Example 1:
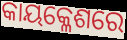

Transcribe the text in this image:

କାୟକ୍ଳେଶରେ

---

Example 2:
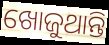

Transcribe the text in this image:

ଖୋଜୁଥାନ୍ତି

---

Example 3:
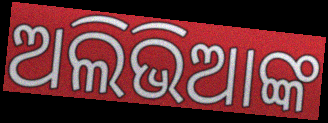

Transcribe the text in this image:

ଅଲିଭିଆଙ୍କ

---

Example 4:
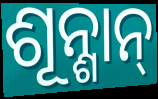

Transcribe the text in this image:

ଶୂନ୍ଶାନ୍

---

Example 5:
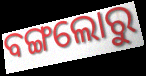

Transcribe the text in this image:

ବଙ୍ଗଲୋରୁ